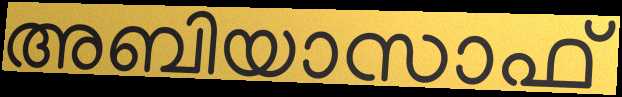
അബിയാസാഫ്